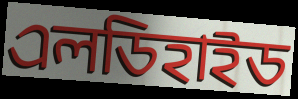
এলডিহাইড